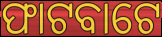
ଫାଟବାଟେ